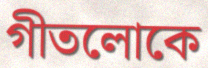
গীতলোকে